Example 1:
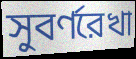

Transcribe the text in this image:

সুবর্ণরেখা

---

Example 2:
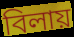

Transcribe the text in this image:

বিলায়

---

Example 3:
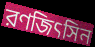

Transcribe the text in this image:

রণজিৎসিন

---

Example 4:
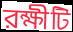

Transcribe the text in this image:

রক্ষীটি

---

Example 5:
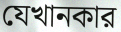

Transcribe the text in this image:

যেখানকার